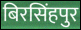
बिरसिंहपुर